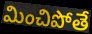
మించిపోతే